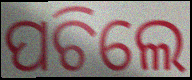
ପଚିଲେ